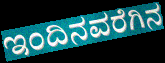
ಇಂದಿನವರೆಗಿನ